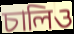
চালিও